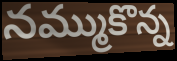
నమ్ముకొన్న